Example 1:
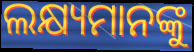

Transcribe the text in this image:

ଲକ୍ଷ୍ୟମାନଙ୍କୁ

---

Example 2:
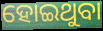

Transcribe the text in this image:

ହୋଇଥୁବା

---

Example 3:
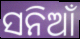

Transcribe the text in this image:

ସନିଆଁ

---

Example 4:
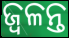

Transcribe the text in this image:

ଜ୍ଵଳନ୍ତ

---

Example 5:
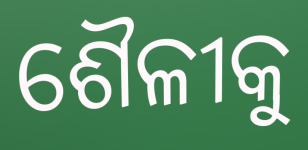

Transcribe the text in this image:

ଶୈଳୀକୁ